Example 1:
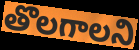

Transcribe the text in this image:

తొలగాలని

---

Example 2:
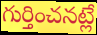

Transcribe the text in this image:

గుర్తించనట్లే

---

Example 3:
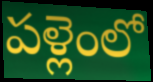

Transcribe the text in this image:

పళ్లెంలో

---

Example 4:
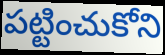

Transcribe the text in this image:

పట్టించుకోని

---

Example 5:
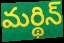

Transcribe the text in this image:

మర్థిన్